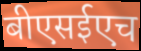
बीएसईएच